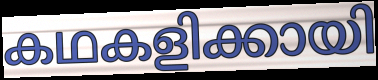
കഥകളിക്കായി